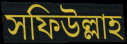
সফিউল্লাহ